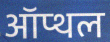
ऑप्थल